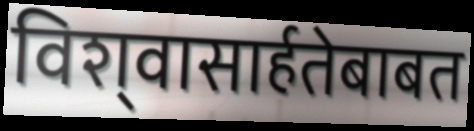
विश्वासार्हतेबाबत